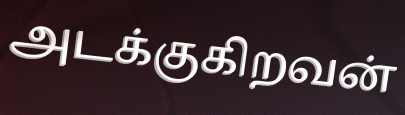
அடக்குகிறவன்